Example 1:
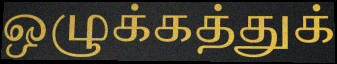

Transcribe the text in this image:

ஒழுக்கத்துக்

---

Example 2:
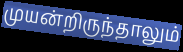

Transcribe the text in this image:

முயன்றிருந்தாலும்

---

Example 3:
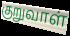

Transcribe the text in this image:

குறுவாள்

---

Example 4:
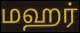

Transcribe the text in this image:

மஹர்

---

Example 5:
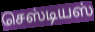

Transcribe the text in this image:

செஸ்டியஸ்